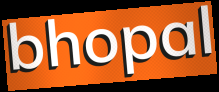
bhopal